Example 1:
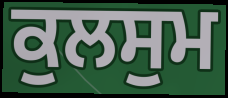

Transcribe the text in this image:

ਕੁਲਸੁਮ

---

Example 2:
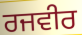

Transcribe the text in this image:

ਰਜਵੀਰ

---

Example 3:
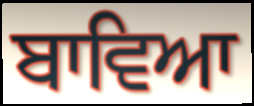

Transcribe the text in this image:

ਬਾਵਿਆ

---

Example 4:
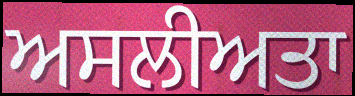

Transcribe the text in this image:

ਅਸਲੀਅਤਾ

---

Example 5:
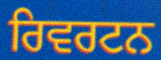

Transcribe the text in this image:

ਰਿਵਰਟਨ